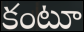
కంటూ